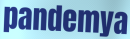
pandemya